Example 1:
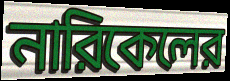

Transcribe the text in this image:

নারিকেলের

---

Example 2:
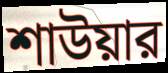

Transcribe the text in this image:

শাউয়ার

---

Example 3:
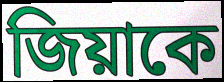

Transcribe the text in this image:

জিয়াকে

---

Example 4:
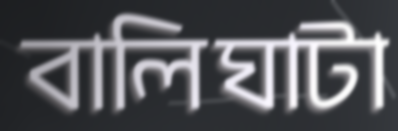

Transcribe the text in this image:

বালিঘাটা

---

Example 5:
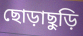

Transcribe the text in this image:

ছোড়াছুড়ি